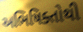
અભિષિક્તોથી